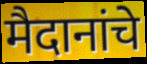
मैदानांचे